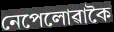
নেপেলোৱাকৈ